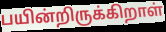
பயின்றிருக்கிறாள்